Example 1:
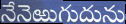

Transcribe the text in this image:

నేనెఱుగుదును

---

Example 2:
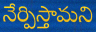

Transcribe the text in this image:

నేర్పిస్తామని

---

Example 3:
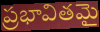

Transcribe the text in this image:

ప్రభావితమై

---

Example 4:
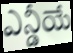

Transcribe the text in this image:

ఎన్డీయే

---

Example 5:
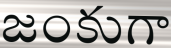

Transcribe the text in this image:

జంకుగా